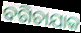
ବଗିଚାଯାକ